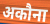
अकौना